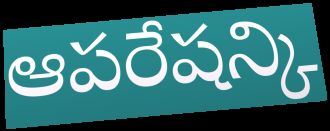
ఆపరేషన్కి